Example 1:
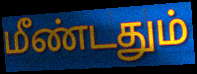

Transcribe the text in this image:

மீண்டதும்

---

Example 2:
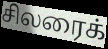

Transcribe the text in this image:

சிலரைக்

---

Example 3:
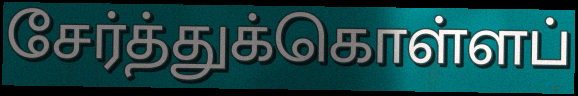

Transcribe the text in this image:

சேர்த்துக்கொள்ளப்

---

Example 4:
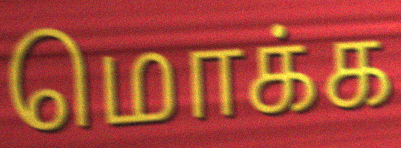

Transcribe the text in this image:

மொக்க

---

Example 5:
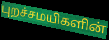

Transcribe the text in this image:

புறச்சமயிகளின்